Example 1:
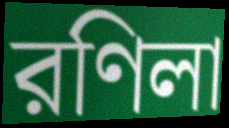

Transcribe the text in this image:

রণিলা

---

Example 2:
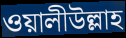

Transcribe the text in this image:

ওয়ালীউল্লাহ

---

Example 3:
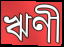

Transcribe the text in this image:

ঋণী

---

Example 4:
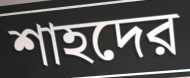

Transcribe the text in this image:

শাহদের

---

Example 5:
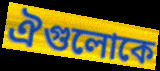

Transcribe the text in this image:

ঐগুলোকে